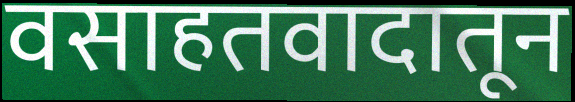
वसाहतवादातून